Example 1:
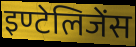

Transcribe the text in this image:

इण्टेलिजेंस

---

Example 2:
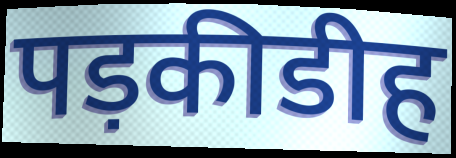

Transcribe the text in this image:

पड़कीडीह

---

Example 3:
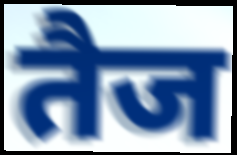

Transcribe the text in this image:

तैज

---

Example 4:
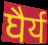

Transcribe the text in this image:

घैर्य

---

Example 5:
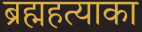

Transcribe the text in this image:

ब्रह्महत्याका